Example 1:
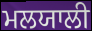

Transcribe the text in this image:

ਮਲਯਾਲੀ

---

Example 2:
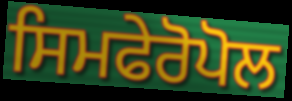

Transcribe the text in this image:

ਸਿਮਫੇਰੋਪੋਲ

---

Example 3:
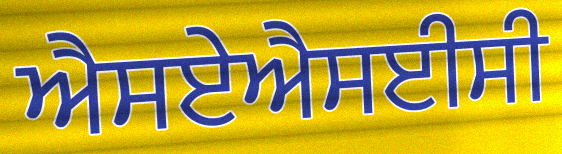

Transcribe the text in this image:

ਐਸਏਐਸਈਸੀ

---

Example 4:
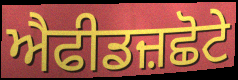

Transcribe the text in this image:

ਐਫੀਡਜ਼ਛੋਟੇ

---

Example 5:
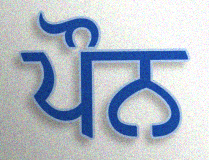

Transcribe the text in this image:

ਪੌਨ